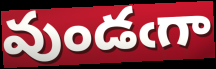
వుండఁగా